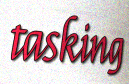
tasking